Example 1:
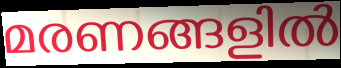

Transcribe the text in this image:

മരണങ്ങളിൽ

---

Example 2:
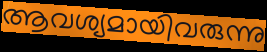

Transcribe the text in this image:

ആവശ്യമായിവരുന്നു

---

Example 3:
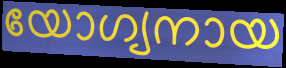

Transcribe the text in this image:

യോഗ്യനായ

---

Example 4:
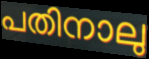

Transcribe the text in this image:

പതിനാലു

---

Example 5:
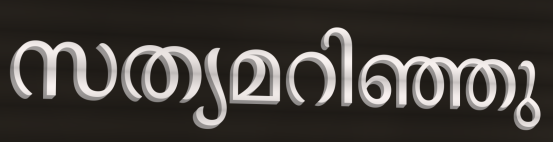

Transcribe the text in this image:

സത്യമറിഞ്ഞു